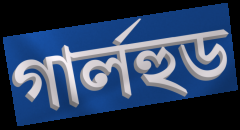
গার্লহুড